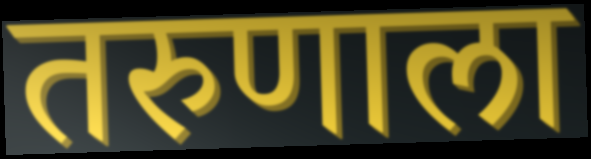
तरुणाला